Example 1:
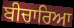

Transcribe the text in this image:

ਬੀਚਾਰਿਆ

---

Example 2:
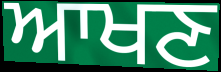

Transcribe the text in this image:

ਆਖਣ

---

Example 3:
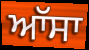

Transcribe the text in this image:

ਆੱਸਾ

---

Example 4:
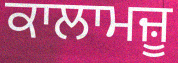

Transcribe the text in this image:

ਕਾਲਾਮਜ਼ੂ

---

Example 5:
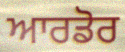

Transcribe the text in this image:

ਆਰਡੋਰ